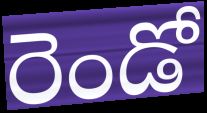
రెండో